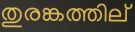
തുരങ്കത്തില്